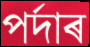
পৰ্দাৰ